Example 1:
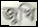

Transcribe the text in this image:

জুখি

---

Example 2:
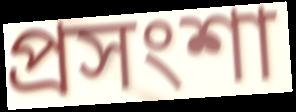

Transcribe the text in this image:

প্ৰসংশা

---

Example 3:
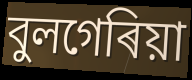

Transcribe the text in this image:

বুলগেৰিয়া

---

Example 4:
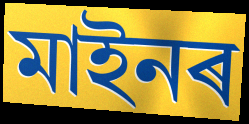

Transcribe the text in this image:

মাইনৰ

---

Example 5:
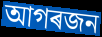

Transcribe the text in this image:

আগৰজন